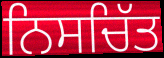
ਨਿਸਚਿੱਤ